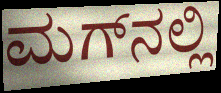
ಮಗ್‌ನಲ್ಲಿ